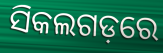
ସିକଲଗଡ଼ରେ